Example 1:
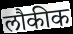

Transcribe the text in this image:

लौकीक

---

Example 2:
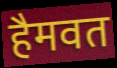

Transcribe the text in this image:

हैमवत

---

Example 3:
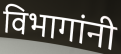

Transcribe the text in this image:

विभागांनी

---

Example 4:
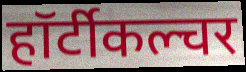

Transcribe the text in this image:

हॉर्टीकल्चर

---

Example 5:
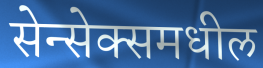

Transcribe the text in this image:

सेन्सेक्समधील